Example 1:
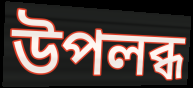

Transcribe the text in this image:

উপলব্ধ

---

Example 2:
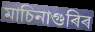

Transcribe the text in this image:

মাচিনাগুৰিৰ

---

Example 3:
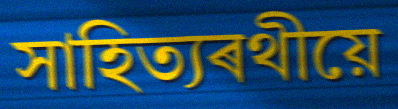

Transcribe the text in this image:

সাহিত্যৰথীয়ে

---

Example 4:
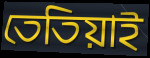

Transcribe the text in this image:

তেতিয়াই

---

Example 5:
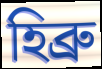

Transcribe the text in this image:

হিব্ৰু